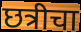
छत्रीचा